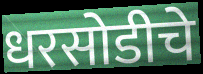
धरसोडीचे